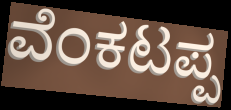
ವೆಂಕಟಪ್ಪ